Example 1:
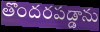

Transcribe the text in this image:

తొందరపడ్డాను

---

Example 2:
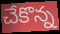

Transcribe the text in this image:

చేకొన్న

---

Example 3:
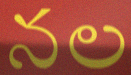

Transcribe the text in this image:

నల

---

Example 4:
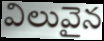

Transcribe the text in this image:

విలువైన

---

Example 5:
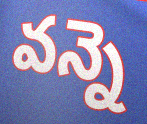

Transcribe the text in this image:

వన్నె